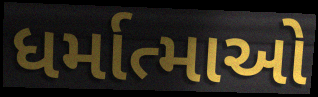
ધર્માત્માઓ